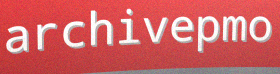
archivepmo